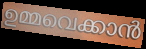
ഉമ്മവെക്കാൻ